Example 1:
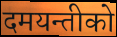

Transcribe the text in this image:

दमयन्तीको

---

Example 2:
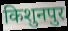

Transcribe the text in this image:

किशुनपुर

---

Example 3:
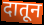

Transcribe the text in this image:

दातून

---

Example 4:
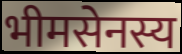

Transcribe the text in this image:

भीमसेनस्य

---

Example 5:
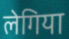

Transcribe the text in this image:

लेगिया